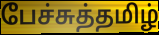
பேச்சுத்தமிழ்